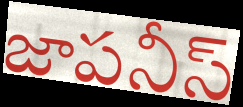
జాపనీస్